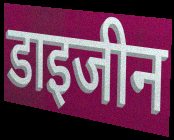
डाइजीन